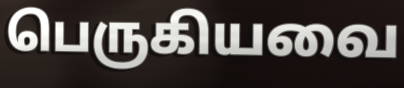
பெருகியவை